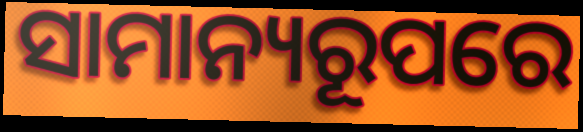
ସାମାନ୍ୟରୂପରେ